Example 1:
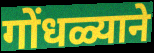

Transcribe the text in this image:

गोंधळ्याने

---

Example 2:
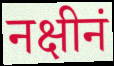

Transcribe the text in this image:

नक्षीनं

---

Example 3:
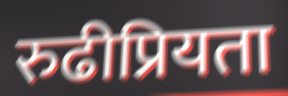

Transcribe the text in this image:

रुढीप्रियता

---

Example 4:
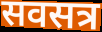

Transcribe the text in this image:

सवसत्र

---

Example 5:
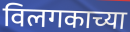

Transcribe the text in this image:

विलगकाच्या